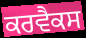
ਕਰਵੈਕਸ